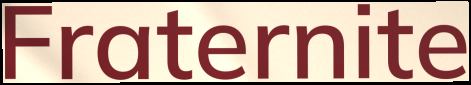
Fraternite